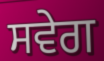
ਸਵੇਗ